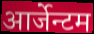
आर्जेन्टम